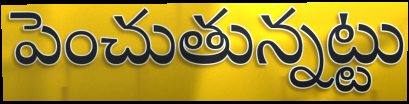
పెంచుతున్నట్టు